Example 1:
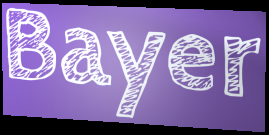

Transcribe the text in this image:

Bayer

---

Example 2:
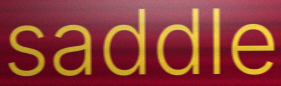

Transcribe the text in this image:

saddle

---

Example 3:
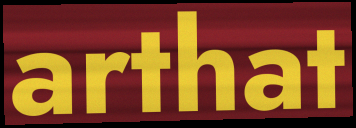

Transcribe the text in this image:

arthat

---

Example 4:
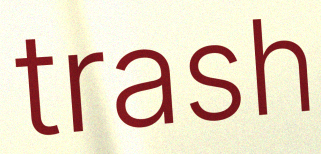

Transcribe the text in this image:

trash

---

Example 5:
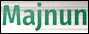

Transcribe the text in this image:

Majnun